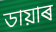
ডায়াৰ